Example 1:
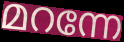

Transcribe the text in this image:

മറന്നേ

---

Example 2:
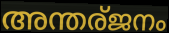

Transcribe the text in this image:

അന്തര്ജനം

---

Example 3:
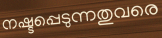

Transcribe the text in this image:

നഷ്ടപ്പെടുന്നതുവരെ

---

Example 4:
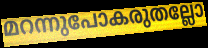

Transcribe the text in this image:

മറന്നുപോകരുതല്ലോ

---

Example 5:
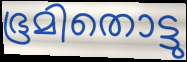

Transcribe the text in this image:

ഭൂമിതൊട്ടു